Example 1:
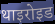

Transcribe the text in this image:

थाइरोइड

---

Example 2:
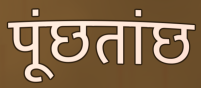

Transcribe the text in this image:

पूंछतांछ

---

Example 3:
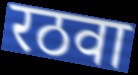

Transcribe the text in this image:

रठवा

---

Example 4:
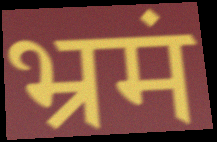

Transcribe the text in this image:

भ्रमं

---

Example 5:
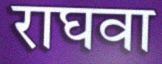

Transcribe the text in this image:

राघवा